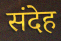
संदेह